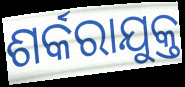
ଶର୍କରାଯୁକ୍ତ